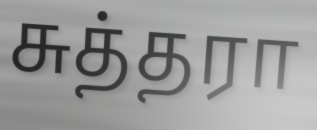
சுத்தரா